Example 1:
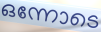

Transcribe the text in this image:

ഒന്നോടെ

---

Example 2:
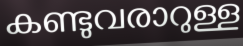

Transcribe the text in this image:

കണ്ടുവരാറുള്ള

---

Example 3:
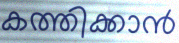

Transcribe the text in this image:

കത്തിക്കാൻ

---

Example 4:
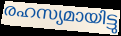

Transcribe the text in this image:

രഹസ്യമായിട്ടു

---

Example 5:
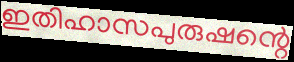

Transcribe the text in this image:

ഇതിഹാസപുരുഷന്റെ